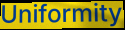
Uniformity